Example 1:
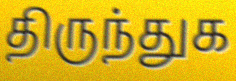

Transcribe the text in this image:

திருந்துக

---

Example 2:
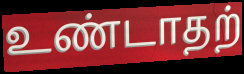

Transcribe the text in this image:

உண்டாதற்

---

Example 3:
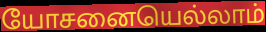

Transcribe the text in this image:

யோசனையெல்லாம்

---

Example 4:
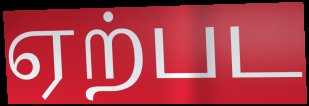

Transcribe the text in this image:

ஏற்பட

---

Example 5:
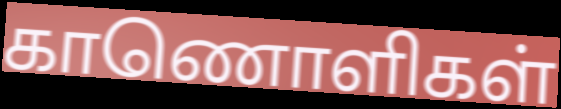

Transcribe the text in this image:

காணொளிகள்